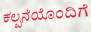
ಕಲ್ಪನೆಯೊಂದಿಗೆ